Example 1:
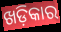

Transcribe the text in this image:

ଖଡ଼ିକାର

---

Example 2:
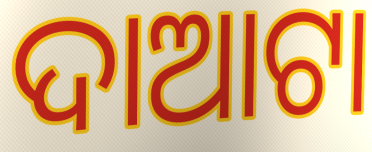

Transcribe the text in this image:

ଦାଆଟା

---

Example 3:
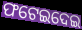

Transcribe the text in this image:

ଫଟେଇଦେଇ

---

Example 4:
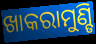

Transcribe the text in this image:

ଖାକରାମୁଣ୍ଡି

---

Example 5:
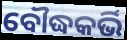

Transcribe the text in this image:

ବୌଦ୍ଧକର୍ଭି